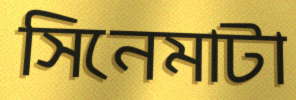
সিনেমাটা